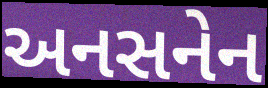
અનસનેન